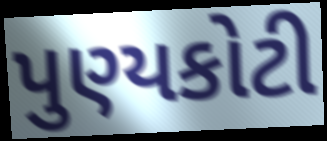
પુણ્યકોટી